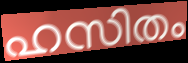
ഹസിതം